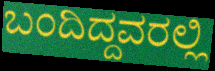
ಬಂದಿದ್ದವರಲ್ಲಿ